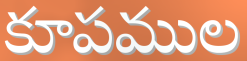
కూపముల